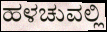
ಹಳಚುವಲ್ಲಿ